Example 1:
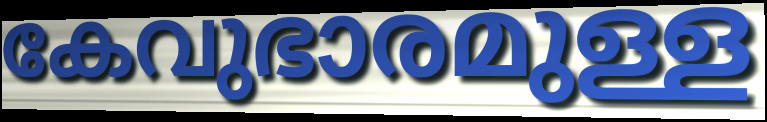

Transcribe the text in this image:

കേവുഭാരമുള്ള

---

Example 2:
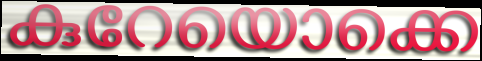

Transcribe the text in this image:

കുറേയൊക്കെ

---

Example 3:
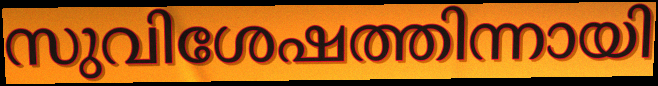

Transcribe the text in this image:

സുവിശേഷത്തിന്നായി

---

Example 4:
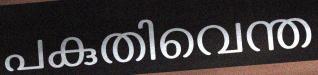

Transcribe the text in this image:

പകുതിവെന്ത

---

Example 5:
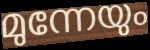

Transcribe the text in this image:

മുന്നേയും